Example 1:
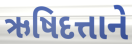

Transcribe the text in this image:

ઋષિદત્તાને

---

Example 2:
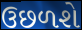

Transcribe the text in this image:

ઉછળશે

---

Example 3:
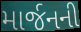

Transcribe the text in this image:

માર્જનની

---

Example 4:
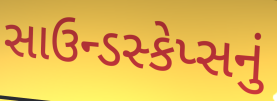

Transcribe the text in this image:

સાઉન્ડસ્કેપ્સનું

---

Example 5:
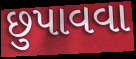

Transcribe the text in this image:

છુપાવવા